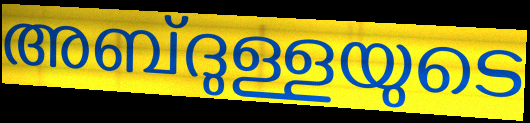
അബ്ദുള്ളയുടെ